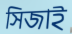
সিজাই